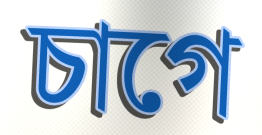
চাগে